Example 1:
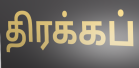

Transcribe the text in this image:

திரக்கப்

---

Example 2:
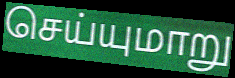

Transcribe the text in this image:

செய்யுமாறு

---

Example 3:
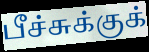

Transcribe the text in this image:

பீச்சுக்குக்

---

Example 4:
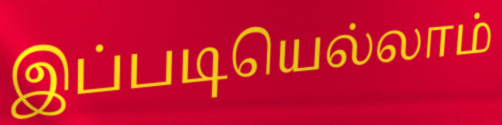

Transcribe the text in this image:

இப்படியெல்லாம்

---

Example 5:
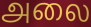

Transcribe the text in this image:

அலை